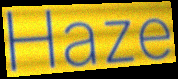
Haze